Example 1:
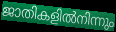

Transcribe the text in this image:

ജാതികളിൽനിന്നും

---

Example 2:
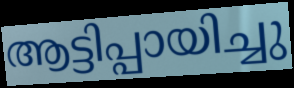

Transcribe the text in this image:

ആട്ടിപ്പായിച്ചു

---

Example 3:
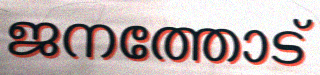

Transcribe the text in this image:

ജനത്തോട്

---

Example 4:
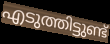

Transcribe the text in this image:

എടുത്തിട്ടുണ്ട്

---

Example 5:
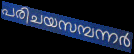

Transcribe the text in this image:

പരിചയസമ്പന്നർ